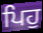
ਪਿਹੁ